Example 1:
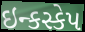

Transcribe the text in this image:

ઇન્કસ્કેપ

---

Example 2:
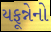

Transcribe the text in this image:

યફૂન્નેનો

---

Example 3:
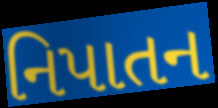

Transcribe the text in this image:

નિપાતન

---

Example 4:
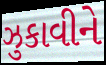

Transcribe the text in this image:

ઝુકાવીને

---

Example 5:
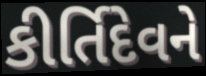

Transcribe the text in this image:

કીર્તિદેવને